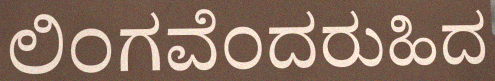
ಲಿಂಗವೆಂದರುಹಿದ